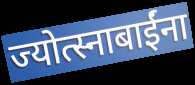
ज्योत्स्नाबाईंना